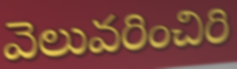
వెలువరించిరి